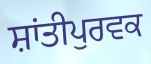
ਸ਼ਾਂਤੀਪੁਰਵਕ